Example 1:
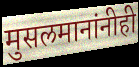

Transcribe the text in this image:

मुसलमानांनीही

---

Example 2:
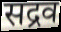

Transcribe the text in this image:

सद्रव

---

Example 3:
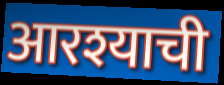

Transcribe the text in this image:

आरश्याची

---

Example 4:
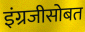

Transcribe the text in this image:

इंग्रजीसोबत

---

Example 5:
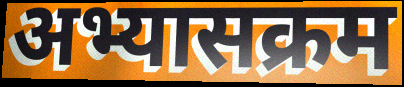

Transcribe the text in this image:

अभ्यासक्रम